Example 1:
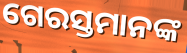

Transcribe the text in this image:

ଗେରସ୍ତମାନଙ୍କ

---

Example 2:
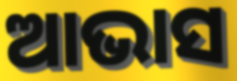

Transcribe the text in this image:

ଆଭାସ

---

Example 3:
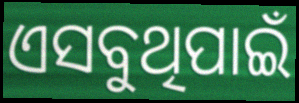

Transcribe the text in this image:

ଏସବୁଥିପାଇଁ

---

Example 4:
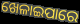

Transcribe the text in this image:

ଖେଳାଇପାରେ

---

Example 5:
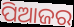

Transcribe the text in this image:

ପିଆଜର